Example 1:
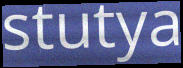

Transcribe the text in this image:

stutya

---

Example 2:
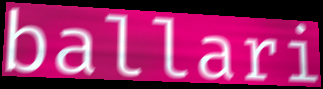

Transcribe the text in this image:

ballari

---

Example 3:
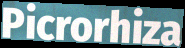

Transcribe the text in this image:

Picrorhiza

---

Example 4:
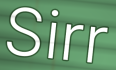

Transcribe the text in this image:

Sirr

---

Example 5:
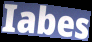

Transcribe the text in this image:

Iabes